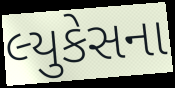
લ્યુકેસના